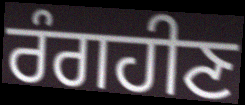
ਰੰਗਹੀਣ